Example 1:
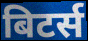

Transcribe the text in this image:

बिटर्स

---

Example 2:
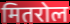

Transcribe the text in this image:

मितरोल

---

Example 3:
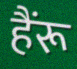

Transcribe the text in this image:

हैंरू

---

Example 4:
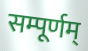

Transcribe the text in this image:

सम्पूर्णम्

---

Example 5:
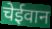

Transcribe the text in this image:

चेईवान